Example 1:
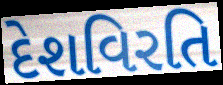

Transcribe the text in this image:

દેશવિરતિ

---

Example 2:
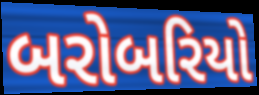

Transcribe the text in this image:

બરોબરિયો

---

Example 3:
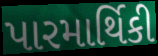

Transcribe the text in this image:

પારમાર્થિકી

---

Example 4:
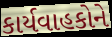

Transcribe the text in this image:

કાર્યવાહકોને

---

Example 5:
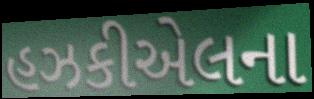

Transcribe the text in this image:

હઝકીએલના